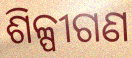
ଶିଳ୍ପୀଗଣ